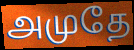
அமுதே